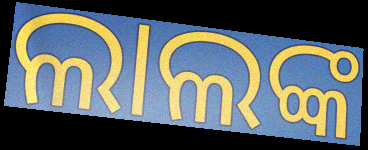
ଲାଲଙ୍କ